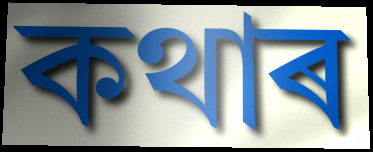
কথাৰ